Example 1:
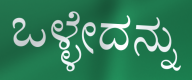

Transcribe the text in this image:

ಒಳ್ಳೇದನ್ನು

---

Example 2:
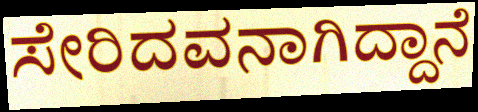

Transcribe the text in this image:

ಸೇರಿದವನಾಗಿದ್ದಾನೆ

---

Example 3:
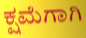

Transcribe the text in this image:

ಕ್ಷಮೆಗಾಗಿ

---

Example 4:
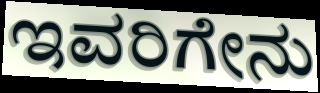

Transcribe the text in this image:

ಇವರಿಗೇನು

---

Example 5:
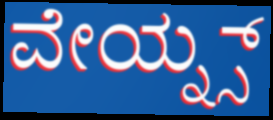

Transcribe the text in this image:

ವೇಯ್ನ್ಸ್